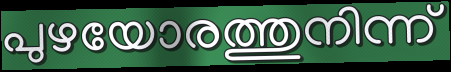
പുഴയോരത്തുനിന്ന്